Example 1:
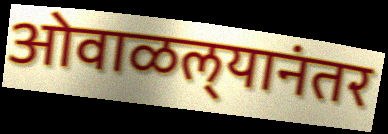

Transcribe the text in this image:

ओवाळल्यानंतर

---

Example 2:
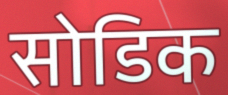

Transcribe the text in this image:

सोडिक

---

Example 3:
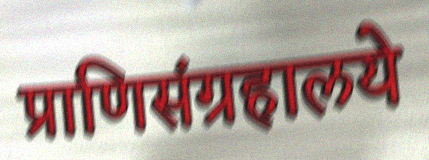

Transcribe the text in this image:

प्राणिसंग्रहालये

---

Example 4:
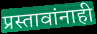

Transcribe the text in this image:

प्रस्तावांनाही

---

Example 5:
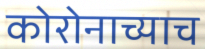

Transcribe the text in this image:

कोरोनाच्याच